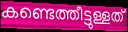
കണ്ടെത്തീട്ടുള്ളത്